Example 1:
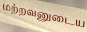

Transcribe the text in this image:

மற்றவனுடைய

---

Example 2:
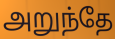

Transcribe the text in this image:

அறுந்தே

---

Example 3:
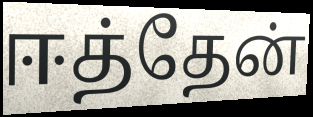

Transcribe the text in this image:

ஈத்தேன்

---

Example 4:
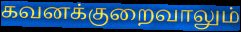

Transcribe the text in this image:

கவனக்குறைவாலும்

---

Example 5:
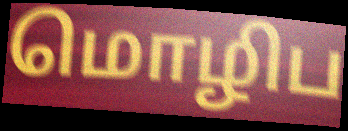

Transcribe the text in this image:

மொழிப